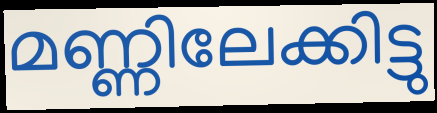
മണ്ണിലേക്കിട്ടു